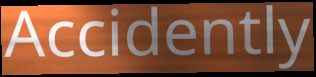
Accidently